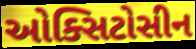
ઓક્સિટોસીન